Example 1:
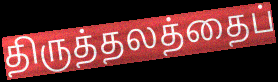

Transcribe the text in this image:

திருத்தலத்தைப்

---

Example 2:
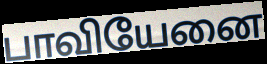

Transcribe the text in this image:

பாவியேனை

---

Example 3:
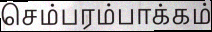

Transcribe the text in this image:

செம்பரம்பாக்கம்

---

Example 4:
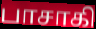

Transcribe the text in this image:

பாசாகி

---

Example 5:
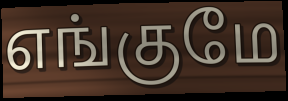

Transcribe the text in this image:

எங்குமே